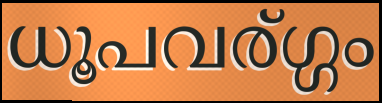
ധൂപവര്ഗ്ഗം